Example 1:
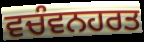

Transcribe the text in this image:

ਵਚੰਵਨਹਰਤ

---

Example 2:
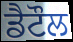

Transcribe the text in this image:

ਡੈਟੌਲ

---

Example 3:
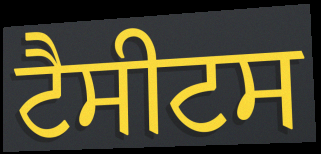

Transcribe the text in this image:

ਟੈਸੀਟਸ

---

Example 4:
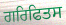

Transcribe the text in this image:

ਗਰਿਫਿਤਸ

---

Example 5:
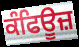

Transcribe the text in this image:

ਕੰਫਿਊਜ਼